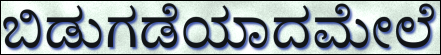
ಬಿಡುಗಡೆಯಾದಮೇಲೆ